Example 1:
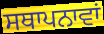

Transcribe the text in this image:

ਸਥਾਪਨਾਵਾਂ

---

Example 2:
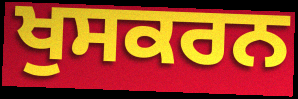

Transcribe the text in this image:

ਖੁਸਕਰਨ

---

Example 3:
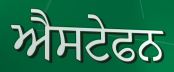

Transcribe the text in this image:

ਐਸਟੇਫਨ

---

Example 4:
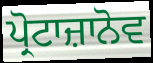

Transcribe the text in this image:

ਪ੍ਰੋਟਾਜ਼ਾਨੋਵ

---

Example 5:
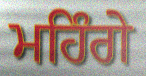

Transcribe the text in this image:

ਮਹਿੰਗੇ